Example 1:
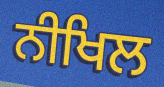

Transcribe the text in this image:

ਨੀਖਿਲ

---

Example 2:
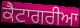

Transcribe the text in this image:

ਕੈਟਾਗਰੀਆ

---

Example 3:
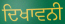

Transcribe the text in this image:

ਦਿਖਾਵਨੀ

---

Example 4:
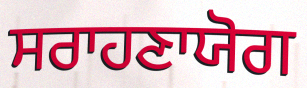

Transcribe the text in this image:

ਸਰਾਹਣਾਯੋਗ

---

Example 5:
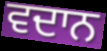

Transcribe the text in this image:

ਵਦਾਨ